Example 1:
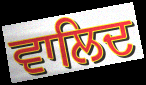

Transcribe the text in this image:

ਵਾਲਿਦ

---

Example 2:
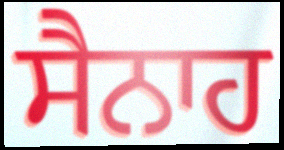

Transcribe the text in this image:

ਸੈਨਾਹ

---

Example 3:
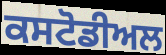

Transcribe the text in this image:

ਕਸਟੋਡੀਅਲ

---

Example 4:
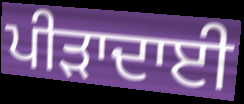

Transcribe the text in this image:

ਪੀੜਾਦਾਈ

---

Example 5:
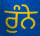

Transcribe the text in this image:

ਰੁੰਨੇ